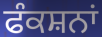
ਫੰਕਸ਼ਨਾਂ